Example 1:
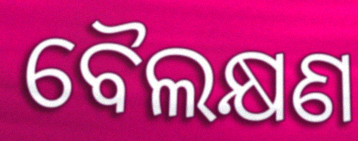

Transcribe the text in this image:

ବୈଲକ୍ଷଣ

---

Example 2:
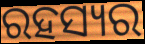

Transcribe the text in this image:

ରହସ୍ୟର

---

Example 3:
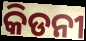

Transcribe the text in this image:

କିଡନୀ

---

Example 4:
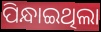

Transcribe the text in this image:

ପିନ୍ଧାଇଥିଲା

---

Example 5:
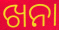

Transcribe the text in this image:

ଖନା